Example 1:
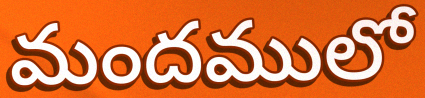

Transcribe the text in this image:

మందములో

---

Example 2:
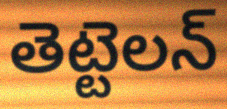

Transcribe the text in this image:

తెట్టెలన్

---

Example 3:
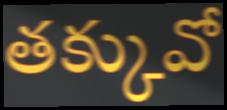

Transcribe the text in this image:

తక్కువో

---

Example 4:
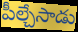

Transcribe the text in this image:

పీల్చేసాడు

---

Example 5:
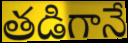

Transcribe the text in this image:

తడిగానే